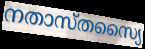
നതാസ്തസ്യൈ